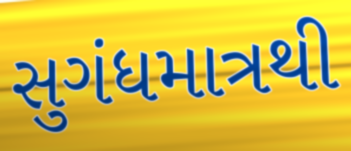
સુગંધમાત્રથી